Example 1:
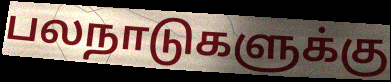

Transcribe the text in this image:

பலநாடுகளுக்கு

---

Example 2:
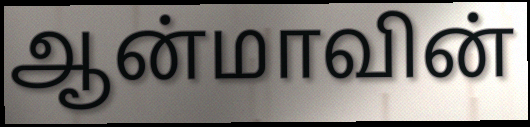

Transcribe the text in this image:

ஆன்மாவின்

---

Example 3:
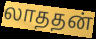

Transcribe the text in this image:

லாததன்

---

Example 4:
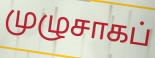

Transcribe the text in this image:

முழுசாகப்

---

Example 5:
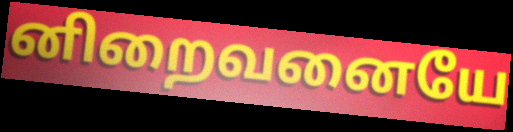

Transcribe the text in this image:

னிறைவனையே